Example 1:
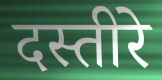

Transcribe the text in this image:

दस्तीरे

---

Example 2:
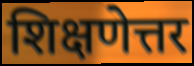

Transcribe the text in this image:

शिक्षणेत्तर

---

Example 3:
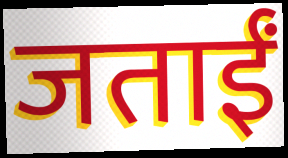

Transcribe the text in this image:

जताईं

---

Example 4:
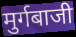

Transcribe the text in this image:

मुर्गबाजी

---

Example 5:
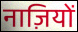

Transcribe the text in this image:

नाज़ियों